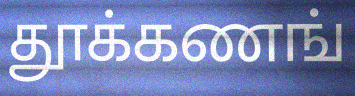
தூக்கணங்